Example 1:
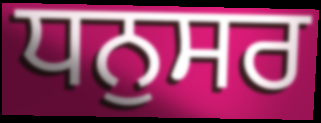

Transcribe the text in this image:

ਧਨੁਸਰ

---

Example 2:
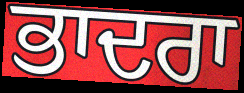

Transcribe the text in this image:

ਭਾਦਰਾ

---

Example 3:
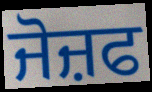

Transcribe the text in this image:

ਜੋਜ਼ਫ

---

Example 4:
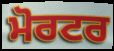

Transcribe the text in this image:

ਮੋਰਟਰ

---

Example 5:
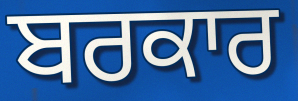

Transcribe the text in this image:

ਬਰਕਾਰ